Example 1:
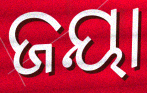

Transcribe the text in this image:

ଜୟା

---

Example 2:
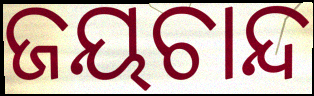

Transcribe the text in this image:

ଜୟଚାନ୍ଦ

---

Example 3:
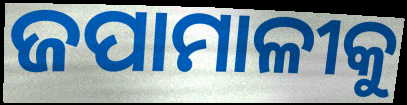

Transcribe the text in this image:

ଜପାମାଳୀକୁ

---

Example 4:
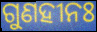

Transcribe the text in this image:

ଗୁଣହୀନଃ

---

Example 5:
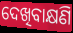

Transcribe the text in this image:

ଦେଖିବାକ୍ଷଣି